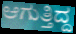
ಆಗುತ್ತಿದ್ದ